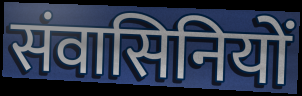
संवासिनियों